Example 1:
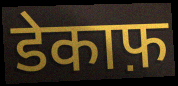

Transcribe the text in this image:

डेकाफ़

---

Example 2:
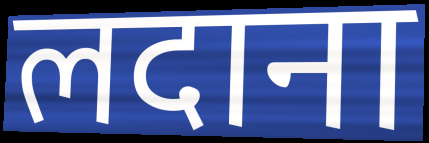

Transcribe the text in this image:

लदाना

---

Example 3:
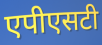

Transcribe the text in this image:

एपीएसटी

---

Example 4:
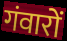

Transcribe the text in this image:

गंवारों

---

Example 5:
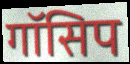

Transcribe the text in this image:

गॉसिप